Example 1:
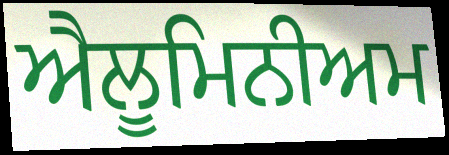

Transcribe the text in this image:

ਐਲੂਮਿਨੀਅਮ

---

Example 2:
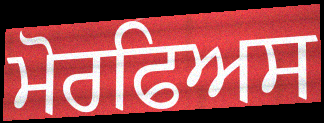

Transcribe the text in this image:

ਮੋਰਫਿਅਸ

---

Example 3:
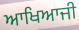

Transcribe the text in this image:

ਆਖਿਆਜੀ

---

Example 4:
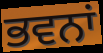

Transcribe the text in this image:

ਭਵਨਾਂ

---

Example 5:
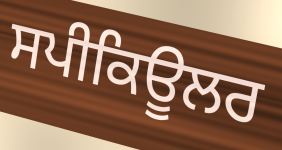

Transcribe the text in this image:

ਸਪੀਕਿਊਲਰ